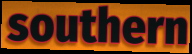
southern